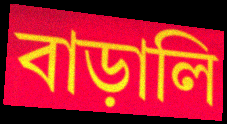
বাড়ালি